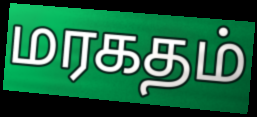
மரகதம்